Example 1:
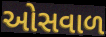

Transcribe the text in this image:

ઓસવાળ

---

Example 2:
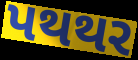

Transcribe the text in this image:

પથથર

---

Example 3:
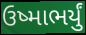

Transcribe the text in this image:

ઉષ્માભર્યું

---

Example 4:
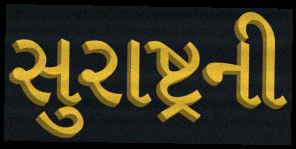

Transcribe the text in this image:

સુરાષ્ટ્રની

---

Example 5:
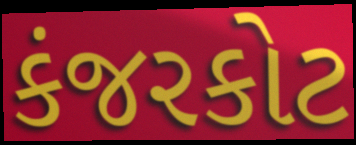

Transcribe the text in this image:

કંજરકોટ